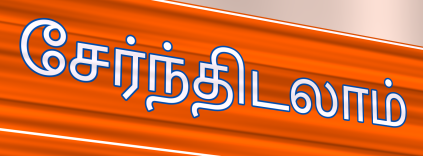
சேர்ந்திடலாம்